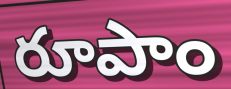
రూపాం